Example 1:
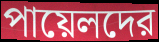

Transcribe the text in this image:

পায়েলদের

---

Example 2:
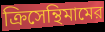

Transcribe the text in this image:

ক্রিসেন্থিমামের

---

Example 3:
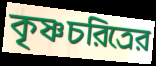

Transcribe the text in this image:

কৃষ্ণচরিত্রের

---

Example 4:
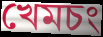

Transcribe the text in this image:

খেমচং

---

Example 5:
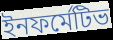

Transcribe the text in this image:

ইনফর্মেটিভ